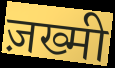
ज़ख्मी